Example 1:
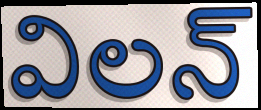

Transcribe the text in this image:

విలన్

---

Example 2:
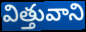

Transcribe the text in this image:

విత్తువాని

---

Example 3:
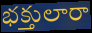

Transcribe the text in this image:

భక్తులారా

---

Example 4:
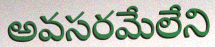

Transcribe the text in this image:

అవసరమేలేని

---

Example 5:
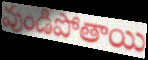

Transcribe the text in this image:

వుండిపోతాయి